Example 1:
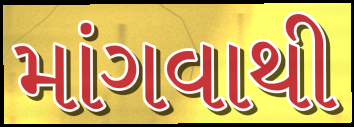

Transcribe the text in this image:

માંગવાથી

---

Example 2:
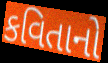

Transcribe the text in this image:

કવિતાનો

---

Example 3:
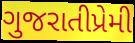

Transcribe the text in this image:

ગુજરાતીપ્રેમી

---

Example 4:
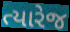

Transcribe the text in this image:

ત્યારેજ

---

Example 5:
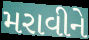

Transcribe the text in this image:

મરાવીને